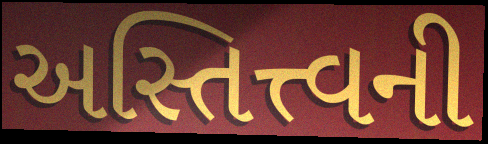
અસ્તિત્ત્વની